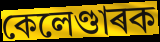
কেলেণ্ডাৰক